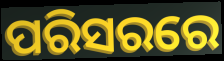
ପରିସରରେ